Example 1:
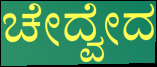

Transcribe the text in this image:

ಚೇದ್ವೇದ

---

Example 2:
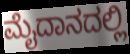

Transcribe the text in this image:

ಮೈದಾನದಲ್ಲಿ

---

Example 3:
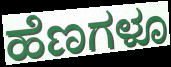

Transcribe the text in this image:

ಹೆಣಗಳೂ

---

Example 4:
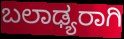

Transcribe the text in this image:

ಬಲಾಢ್ಯರಾಗಿ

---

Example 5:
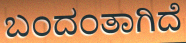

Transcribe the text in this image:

ಬಂದಂತಾಗಿದೆ